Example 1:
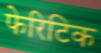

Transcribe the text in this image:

फेरिटिक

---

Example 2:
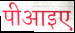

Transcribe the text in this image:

पीआइए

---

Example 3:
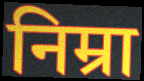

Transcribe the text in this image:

निम्रा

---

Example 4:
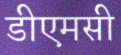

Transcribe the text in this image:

डीएमसी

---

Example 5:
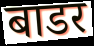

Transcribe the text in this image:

बाडर